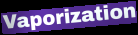
Vaporization